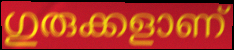
ഗുരുക്കളാണ്